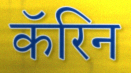
कॅरिन